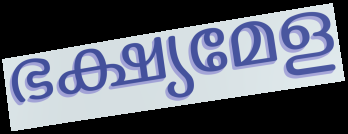
ഭക്ഷ്യമേള